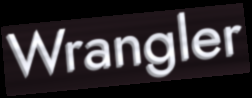
Wrangler